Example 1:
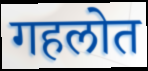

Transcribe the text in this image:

गहलोत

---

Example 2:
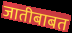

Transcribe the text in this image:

जातीबाबत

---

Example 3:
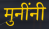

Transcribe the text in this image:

मुनींनी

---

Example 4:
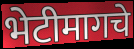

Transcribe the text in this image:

भेटीमागचे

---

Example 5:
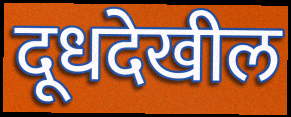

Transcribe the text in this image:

दूधदेखील